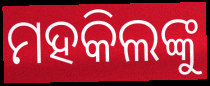
ମହକିଲଙ୍କୁ